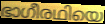
ഭാഗീരഥിയെ